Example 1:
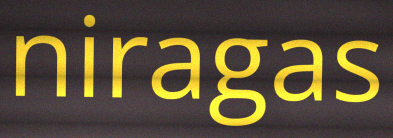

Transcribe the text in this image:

niragas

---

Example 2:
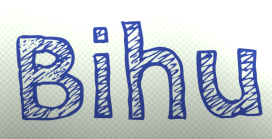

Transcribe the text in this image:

Bihu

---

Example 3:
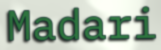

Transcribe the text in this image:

Madari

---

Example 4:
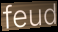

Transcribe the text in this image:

feud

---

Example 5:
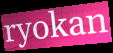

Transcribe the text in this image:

ryokan